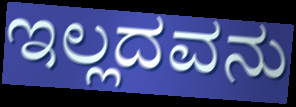
ಇಲ್ಲದವನು